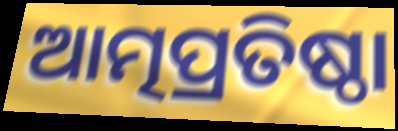
ଆତ୍ମପ୍ରତିଷ୍ଠା